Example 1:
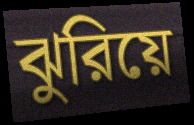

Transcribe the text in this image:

ঝুরিয়ে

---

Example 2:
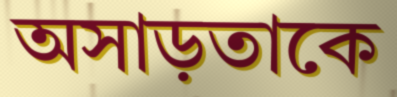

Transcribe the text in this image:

অসাড়তাকে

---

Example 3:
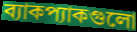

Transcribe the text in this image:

ব্যাকপ্যাকগুলো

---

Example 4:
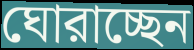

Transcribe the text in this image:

ঘোরাচ্ছেন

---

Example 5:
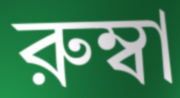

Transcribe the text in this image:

রুম্বা